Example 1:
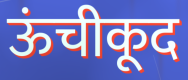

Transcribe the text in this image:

ऊंचीकूद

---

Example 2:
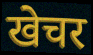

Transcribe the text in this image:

खेचर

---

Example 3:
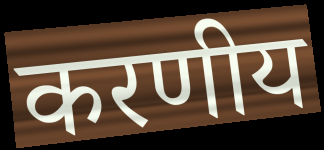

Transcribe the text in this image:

करणीय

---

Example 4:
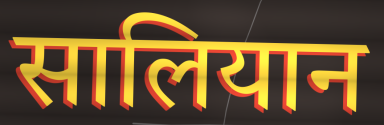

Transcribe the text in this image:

सालियान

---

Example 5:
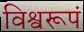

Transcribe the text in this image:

विश्वरूपं